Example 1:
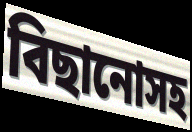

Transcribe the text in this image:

বিছানোসহ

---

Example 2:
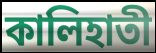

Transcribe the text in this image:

কালিহাতী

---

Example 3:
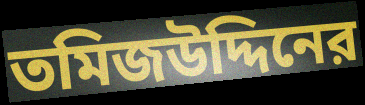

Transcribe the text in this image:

তমিজউদ্দিনের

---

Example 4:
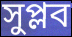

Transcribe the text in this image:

সুপ্লব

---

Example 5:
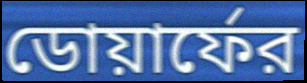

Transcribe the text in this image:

ডোয়ার্ফের